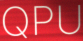
QPU